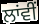
ਲਾਂਵੀਂ